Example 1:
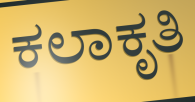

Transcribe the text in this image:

ಕಲಾಕೃತಿ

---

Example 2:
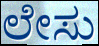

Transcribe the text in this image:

ಲೇಸು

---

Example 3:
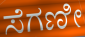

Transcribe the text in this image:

ಸೆಗಣೀ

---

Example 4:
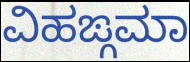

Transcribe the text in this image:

ವಿಹಙ್ಗಮಾ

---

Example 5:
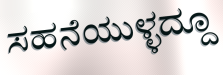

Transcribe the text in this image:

ಸಹನೆಯುಳ್ಳದ್ದೂ